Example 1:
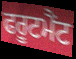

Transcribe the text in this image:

ਫਰੂਟਮੈਂਟ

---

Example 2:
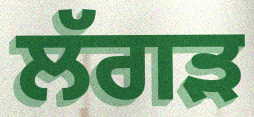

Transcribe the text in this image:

ਲੱਗੜ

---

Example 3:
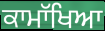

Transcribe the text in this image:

ਕਾਮਾੱਖਿਆ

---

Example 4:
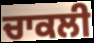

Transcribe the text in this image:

ਚਾਕਲੀ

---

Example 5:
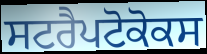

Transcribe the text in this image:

ਸਟਰੈਪਟੋਕੋਕਸ